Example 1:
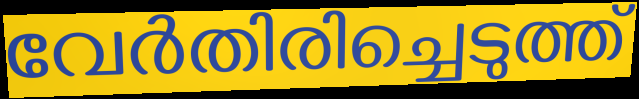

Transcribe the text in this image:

വേർതിരിച്ചെടുത്ത്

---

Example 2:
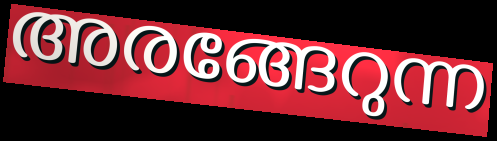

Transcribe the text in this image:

അരങ്ങേറുന്ന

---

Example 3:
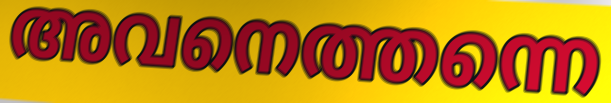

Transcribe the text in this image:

അവനെത്തന്നെ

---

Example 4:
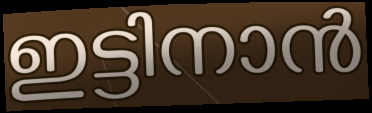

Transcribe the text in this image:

ഇട്ടിനാൻ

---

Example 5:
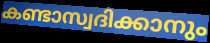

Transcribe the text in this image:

കണ്ടാസ്വദിക്കാനും